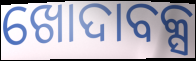
ଖୋଦାବକ୍ସ